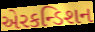
એરકન્ડિશન